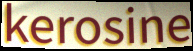
kerosine